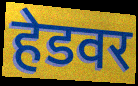
हेडवर